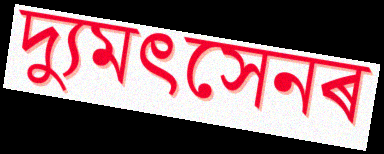
দ্যুমৎসেনৰ